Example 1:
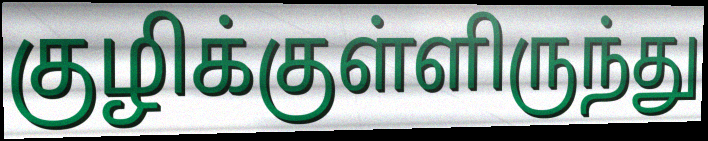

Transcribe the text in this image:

குழிக்குள்ளிருந்து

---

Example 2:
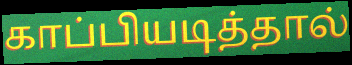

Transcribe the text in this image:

காப்பியடித்தால்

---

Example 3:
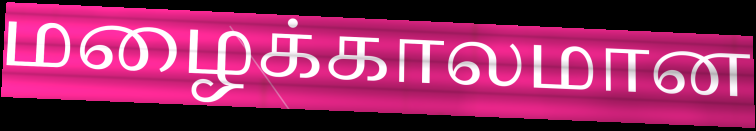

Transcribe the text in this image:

மழைக்காலமான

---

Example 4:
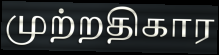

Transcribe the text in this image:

முற்றதிகார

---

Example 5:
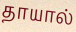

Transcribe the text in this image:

தாயால்